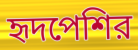
হৃদপেশির